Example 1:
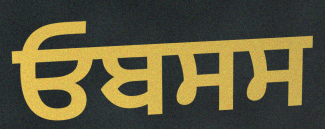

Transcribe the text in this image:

ਓਬਸਸ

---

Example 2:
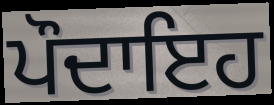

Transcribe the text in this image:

ਪੌਦਾਇਹ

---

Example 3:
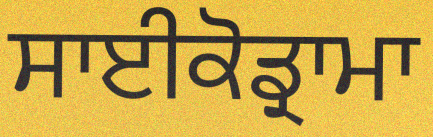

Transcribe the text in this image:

ਸਾਈਕੋਡ੍ਰਾਮਾ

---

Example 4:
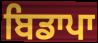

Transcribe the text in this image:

ਬਿਡਾਪਾ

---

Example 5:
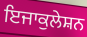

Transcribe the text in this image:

ਇਜਾਕੁਲੇਸ਼ਨ